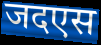
जदएस